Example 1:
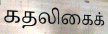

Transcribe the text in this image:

கதலிகைக்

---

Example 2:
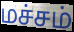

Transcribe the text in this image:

மச்சம்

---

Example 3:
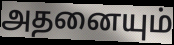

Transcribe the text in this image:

அதனையும்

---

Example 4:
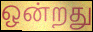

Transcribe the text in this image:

ஒன்றது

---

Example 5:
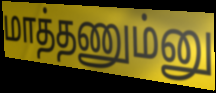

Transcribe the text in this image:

மாத்தணும்னு